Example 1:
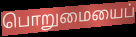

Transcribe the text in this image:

பொறுமையைப்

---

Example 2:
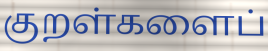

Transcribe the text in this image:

குறள்களைப்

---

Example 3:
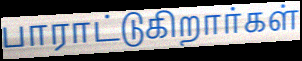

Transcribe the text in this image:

பாராட்டுகிறார்கள்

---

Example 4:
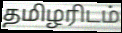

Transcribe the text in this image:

தமிழரிடம்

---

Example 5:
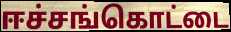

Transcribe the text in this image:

ஈச்சங்கொட்டை